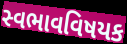
સ્વભાવવિષયક